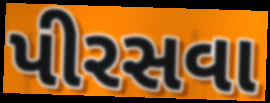
પીરસવા